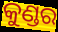
କୁଣ୍ଡର